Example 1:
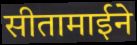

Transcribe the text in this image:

सीतामाईने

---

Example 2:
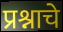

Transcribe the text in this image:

प्रश्नाचे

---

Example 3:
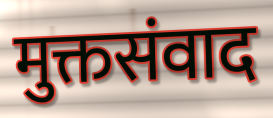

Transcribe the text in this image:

मुक्तसंवाद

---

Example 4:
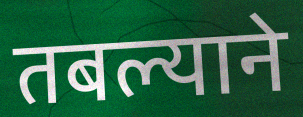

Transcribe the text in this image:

तबल्याने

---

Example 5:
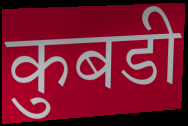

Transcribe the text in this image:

कुबडी